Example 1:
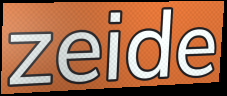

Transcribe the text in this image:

zeide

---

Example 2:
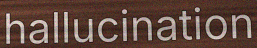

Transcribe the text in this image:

hallucination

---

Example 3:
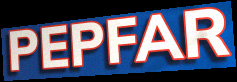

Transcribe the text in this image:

PEPFAR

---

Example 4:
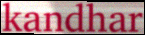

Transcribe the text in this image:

kandhar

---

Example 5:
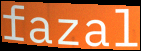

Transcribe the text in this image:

fazal